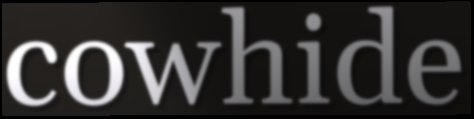
cowhide